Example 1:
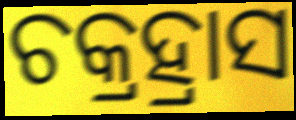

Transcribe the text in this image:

ଚକ୍ରହ୍ରାସ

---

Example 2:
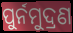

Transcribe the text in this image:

ପୁର୍ନମୁଦ୍ରଣ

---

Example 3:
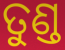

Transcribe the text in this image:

ତୁଣ୍ଡ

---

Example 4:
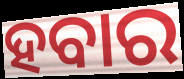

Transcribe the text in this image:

ହବାର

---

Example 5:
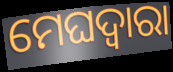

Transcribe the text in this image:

ମେଘଦ୍ୱାରା